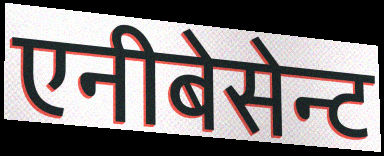
एनीबेसेन्ट